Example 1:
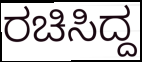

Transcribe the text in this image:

ರಚಿಸಿದ್ದ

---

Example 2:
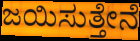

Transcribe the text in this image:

ಜಯಿಸುತ್ತೇನೆ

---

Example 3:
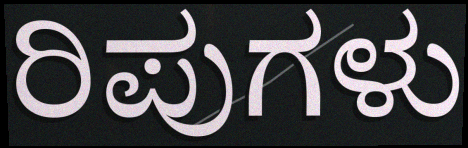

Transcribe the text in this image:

ರಿಪುಗಳು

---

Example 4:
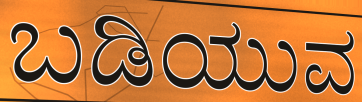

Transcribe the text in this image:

ಬಡಿಯುವ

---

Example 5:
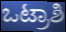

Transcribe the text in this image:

ಒಟ್ರಾಶಿ